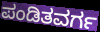
ಪಂಡಿತವರ್ಗ